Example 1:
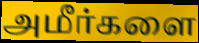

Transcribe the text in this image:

அமீர்களை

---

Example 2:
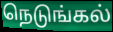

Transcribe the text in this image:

நெடுங்கல்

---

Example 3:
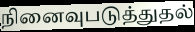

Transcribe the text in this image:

நினைவுபடுத்துதல்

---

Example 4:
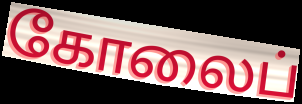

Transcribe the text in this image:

கோலைப்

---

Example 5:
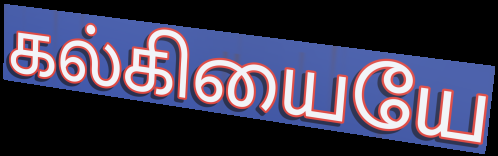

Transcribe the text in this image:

கல்கியையே